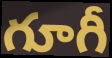
గూగీ